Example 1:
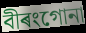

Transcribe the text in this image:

বীৰংগোনা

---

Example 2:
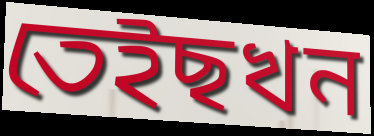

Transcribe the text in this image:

তেইছখন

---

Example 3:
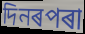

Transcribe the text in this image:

দিনৰপৰা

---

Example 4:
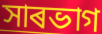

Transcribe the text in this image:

সাৰভাগ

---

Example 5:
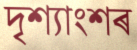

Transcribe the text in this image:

দৃশ্যাংশৰ